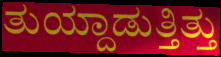
ತುಯ್ದಾಡುತ್ತಿತ್ತು